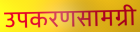
उपकरणसामग्री